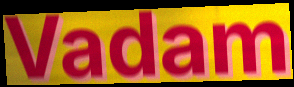
Vadam